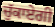
ਚੁੱਕਾਏਗੀ